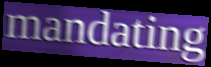
mandating